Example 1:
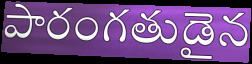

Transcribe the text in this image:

పారంగతుడైన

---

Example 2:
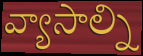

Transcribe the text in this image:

వ్యాసాల్ని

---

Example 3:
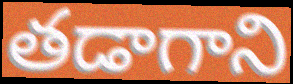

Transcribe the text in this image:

తడాగాని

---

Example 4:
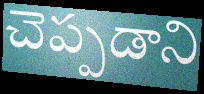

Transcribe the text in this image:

చెప్పడాని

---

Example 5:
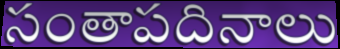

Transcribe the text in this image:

సంతాపదినాలు